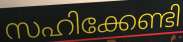
സഹിക്കേണ്ടി